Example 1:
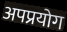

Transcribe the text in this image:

अपप्रयोग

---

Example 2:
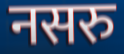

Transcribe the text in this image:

नसरु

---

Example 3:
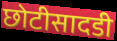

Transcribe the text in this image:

छोटीसादडी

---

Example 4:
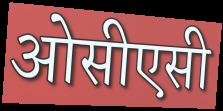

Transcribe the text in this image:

ओसीएसी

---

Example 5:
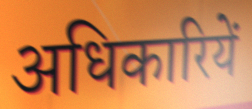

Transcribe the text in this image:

अधिकारियें